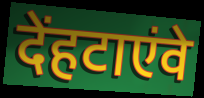
देंहटाएंवे